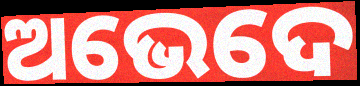
ଅଭେଦେ